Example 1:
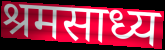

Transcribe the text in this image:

श्रमसाध्य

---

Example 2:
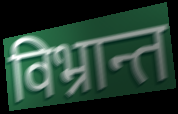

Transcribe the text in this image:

विभ्रान्त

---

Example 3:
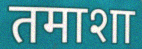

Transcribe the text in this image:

तमाशा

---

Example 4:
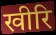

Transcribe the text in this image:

खीरि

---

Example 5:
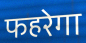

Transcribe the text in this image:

फहरेगा